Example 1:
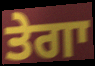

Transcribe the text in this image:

ਤੇਗਾ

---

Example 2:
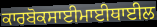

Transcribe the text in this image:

ਕਾਰਬੋਕਸਾਈਮਾਈਥਾਈਲ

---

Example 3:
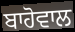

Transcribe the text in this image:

ਬਾਹੋਵਾਲ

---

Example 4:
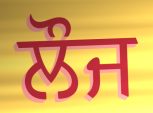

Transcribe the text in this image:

ਲੌਜ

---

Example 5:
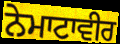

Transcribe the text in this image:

ਨੇਮਾਟਾਵੀਰ